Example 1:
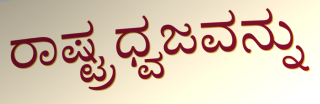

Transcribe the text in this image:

ರಾಷ್ಟ್ರಧ್ವಜವನ್ನು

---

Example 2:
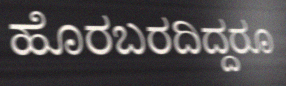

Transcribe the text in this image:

ಹೊರಬರದಿದ್ದರೂ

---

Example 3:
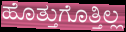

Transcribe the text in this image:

ಹೊತ್ತುಗೊತ್ತಿಲ್ಲ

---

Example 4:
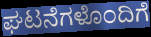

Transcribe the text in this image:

ಘಟನೆಗಳೊಂದಿಗೆ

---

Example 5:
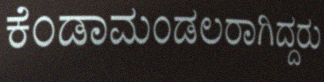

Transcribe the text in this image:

ಕೆಂಡಾಮಂಡಲರಾಗಿದ್ದರು